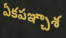
ఏకపఞ్చాశ